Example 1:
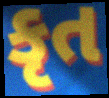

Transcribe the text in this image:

કૃત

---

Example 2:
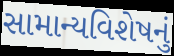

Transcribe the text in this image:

સામાન્યવિશેષનું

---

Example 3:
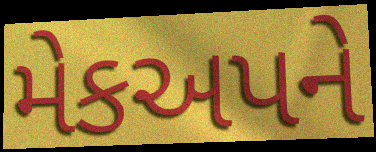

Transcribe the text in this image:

મેકઅપને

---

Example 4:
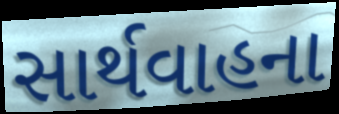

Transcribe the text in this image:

સાર્થવાહના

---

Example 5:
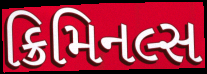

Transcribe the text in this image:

ક્રિમિનલ્સ